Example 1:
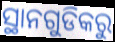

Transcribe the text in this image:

ସ୍ଥାନଗୁଡିକରୁ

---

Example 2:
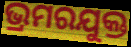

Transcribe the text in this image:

ଭ୍ରମରଯୁକ୍ତ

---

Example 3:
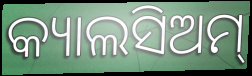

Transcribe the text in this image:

କ୍ୟାଲସିଅମ୍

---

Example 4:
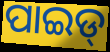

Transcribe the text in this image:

ପାଇଡ୍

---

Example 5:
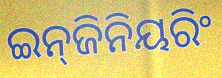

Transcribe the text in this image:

ଇନ୍‍ଜିନିୟରିଂ